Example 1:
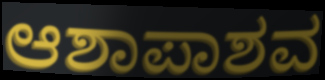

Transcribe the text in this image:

ಆಶಾಪಾಶವ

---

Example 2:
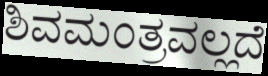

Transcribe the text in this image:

ಶಿವಮಂತ್ರವಲ್ಲದೆ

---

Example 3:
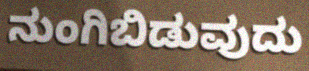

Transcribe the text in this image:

ನುಂಗಿಬಿಡುವುದು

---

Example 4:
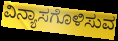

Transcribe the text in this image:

ವಿನ್ಯಾಸಗೊಳಿಸುವ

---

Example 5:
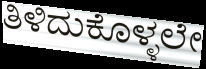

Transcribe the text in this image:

ತಿಳಿದುಕೊಳ್ಳಲೇ